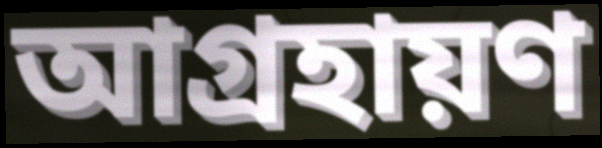
আগ্রহায়ণ